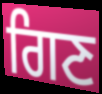
ਗਿਣ